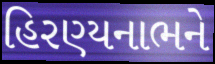
હિરણ્યનાભને